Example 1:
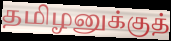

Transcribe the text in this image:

தமிழனுக்குத்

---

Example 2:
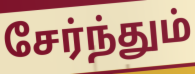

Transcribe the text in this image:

சேர்ந்தும்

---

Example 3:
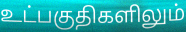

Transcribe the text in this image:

உட்பகுதிகளிலும்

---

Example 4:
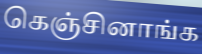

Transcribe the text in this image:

கெஞ்சினாங்க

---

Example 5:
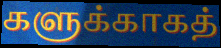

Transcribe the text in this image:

களுக்காகத்